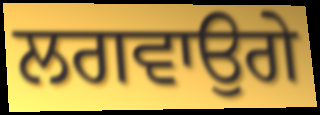
ਲਗਵਾਉਗੇ